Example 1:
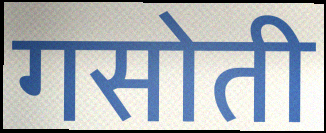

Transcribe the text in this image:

गसोती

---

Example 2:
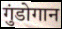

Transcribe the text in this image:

गुंडोगान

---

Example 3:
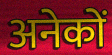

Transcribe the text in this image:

अनेकों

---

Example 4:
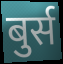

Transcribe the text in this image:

बुर्स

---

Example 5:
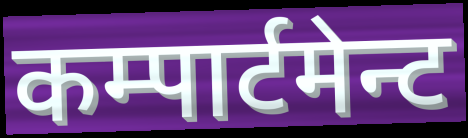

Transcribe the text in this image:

कम्पार्टमेन्ट